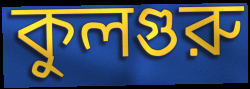
কুলগুরু